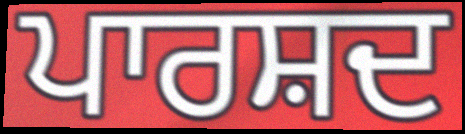
ਪਾਰਸ਼ਦ